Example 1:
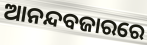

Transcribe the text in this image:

ଆନନ୍ଦବଜାରରେ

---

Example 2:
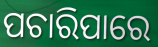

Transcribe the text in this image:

ପଚାରିପାରେ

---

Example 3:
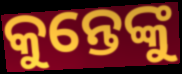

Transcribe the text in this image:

କୁନ୍ତେଙ୍କୁ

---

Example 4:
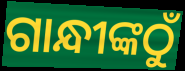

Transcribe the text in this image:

ଗାନ୍ଧୀଙ୍କଠୁଁ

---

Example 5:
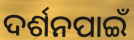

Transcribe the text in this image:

ଦର୍ଶନପାଇଁ